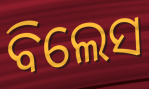
ବିଲେସ